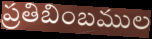
ప్రతిబింబముల